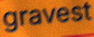
gravest